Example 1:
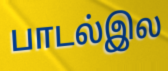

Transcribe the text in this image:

பாடல்இல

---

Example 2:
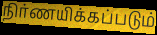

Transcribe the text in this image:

நிர்ணயிக்கப்படும்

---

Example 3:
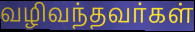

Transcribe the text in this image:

வழிவந்தவர்கள்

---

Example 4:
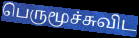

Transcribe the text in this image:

பெருமூச்சுவிட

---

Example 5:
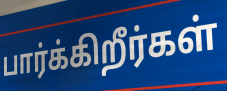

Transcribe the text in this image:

பார்க்கிறீர்கள்